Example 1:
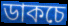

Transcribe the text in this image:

ডাকচে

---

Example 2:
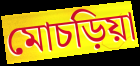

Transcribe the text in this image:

মোচড়িয়া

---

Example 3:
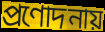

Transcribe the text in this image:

প্রণোদনায়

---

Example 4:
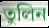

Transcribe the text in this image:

তুলিন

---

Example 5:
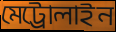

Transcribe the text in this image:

মেট্রোলাইন